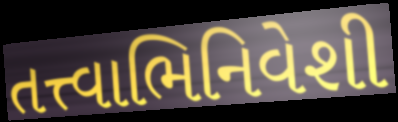
તત્ત્વાભિનિવેશી